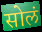
सोलं